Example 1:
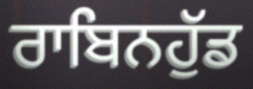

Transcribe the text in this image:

ਰਾਬਿਨਹੁੱਡ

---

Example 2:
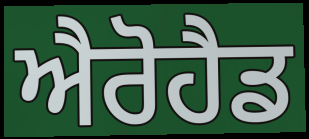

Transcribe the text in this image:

ਐਰੋਹੈਡ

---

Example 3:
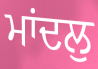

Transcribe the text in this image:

ਮਾਂਦਲੁ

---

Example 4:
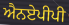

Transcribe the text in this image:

ਐਨਏਪੀਪੀ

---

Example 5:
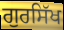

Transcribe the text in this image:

ਗੁਰਸਿੱਖ